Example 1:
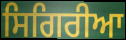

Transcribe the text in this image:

ਸਿਗਿਰੀਆ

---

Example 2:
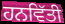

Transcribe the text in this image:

ਹਨਵਿੱਤੀ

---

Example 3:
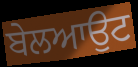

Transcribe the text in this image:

ਬੇਲਆਉਟ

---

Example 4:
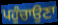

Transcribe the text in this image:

ਪਹੁੰਚਾਉਣਾ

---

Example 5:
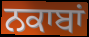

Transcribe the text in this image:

ਨਕਾਬਾਂ